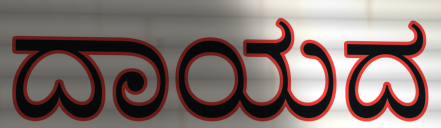
ದಾಯದ